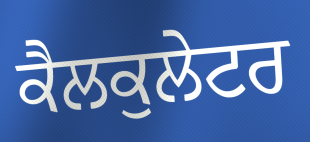
ਕੈਲਕੁਲੇਟਰ